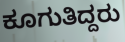
ಕೂಗುತಿದ್ದರು